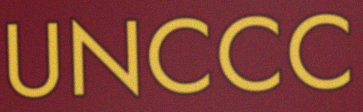
UNCCC